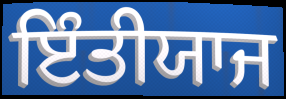
ਇੰਤੀਯਾਜ